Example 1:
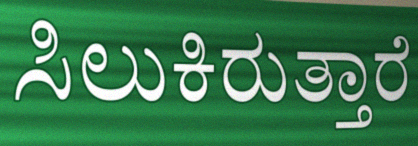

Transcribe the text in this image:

ಸಿಲುಕಿರುತ್ತಾರೆ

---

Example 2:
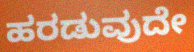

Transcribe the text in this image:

ಹರಡುವುದೇ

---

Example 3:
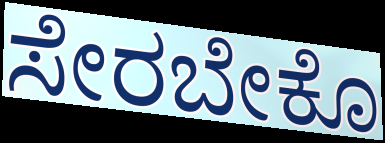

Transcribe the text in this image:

ಸೇರಬೇಕೊ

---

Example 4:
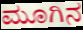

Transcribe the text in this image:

ಮೂಗಿನ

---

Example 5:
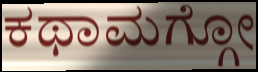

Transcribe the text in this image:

ಕಥಾಮಗ್ಗೋ